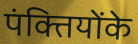
पंक्तियोंके